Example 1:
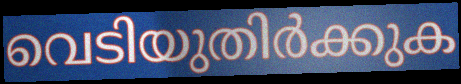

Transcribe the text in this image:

വെടിയുതിർക്കുക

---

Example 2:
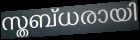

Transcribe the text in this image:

സ്തബ്ധരായി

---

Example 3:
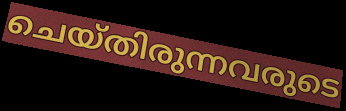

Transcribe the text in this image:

ചെയ്തിരുന്നവരുടെ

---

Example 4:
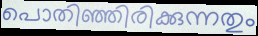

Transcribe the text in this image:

പൊതിഞ്ഞിരിക്കുന്നതും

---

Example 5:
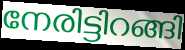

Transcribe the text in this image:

നേരിട്ടിറങ്ങി